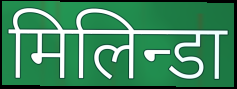
मिलिन्डा